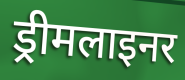
ड्रीमलाइनर